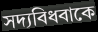
সদ্যবিধবাকে